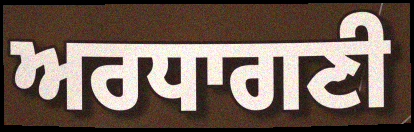
ਅਰਧਾਗਣੀ